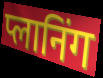
प्लानिंग